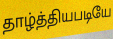
தாழ்த்தியபடியே